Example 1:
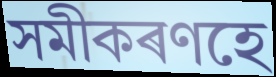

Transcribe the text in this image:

সমীকৰণহে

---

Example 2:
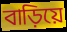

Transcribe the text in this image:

বাড়িয়ে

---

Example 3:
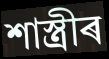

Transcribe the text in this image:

শাস্ত্ৰীৰ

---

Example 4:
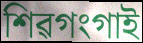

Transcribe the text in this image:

শিৱগংগাই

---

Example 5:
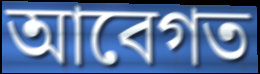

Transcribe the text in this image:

আবেগত